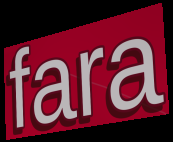
fara